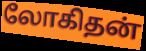
லோகிதன்